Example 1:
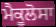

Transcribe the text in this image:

ਮੈਕੂਲੋਸਾ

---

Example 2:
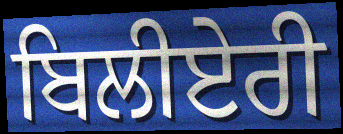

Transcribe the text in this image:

ਬਿਲੀਏਰੀ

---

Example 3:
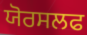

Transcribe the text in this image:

ਯੋਰਸਲਫ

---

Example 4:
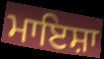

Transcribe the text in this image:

ਮਾਇਸ਼ਾ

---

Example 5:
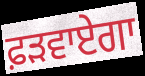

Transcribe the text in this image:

ਫ਼ੜਵਾਏਗਾ